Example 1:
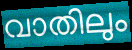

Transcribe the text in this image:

വാതിലും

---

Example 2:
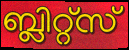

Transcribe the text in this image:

ബ്ലിറ്റ്സ്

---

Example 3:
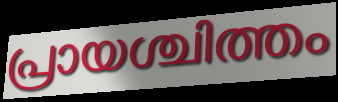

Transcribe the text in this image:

പ്രായശ്ചിത്തം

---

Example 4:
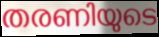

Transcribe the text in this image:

തരണിയുടെ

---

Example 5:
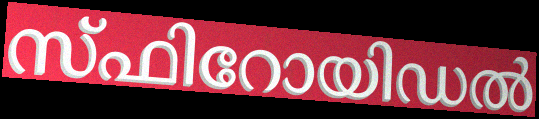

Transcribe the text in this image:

സ്ഫിറോയിഡൽ